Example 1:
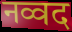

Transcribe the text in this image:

नव्वद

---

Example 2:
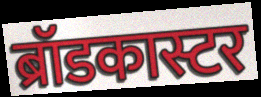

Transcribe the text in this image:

ब्रॉडकास्टर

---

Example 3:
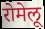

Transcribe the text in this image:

रोमेलू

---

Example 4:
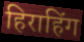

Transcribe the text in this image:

हिराहिंग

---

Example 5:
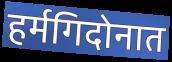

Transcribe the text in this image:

हर्मगिदोनात